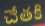
చేతకి